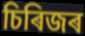
চিৰিজৰ